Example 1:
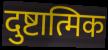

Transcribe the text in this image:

दुष्टात्मिक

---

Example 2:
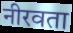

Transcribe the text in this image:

नीरवता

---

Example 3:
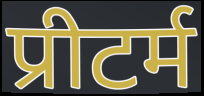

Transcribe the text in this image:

प्रीटर्म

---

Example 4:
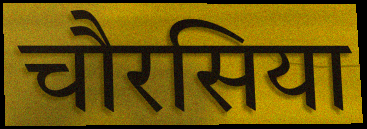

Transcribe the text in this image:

चौरसिया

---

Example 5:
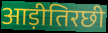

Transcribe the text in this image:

आड़ीतिरछी